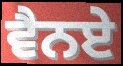
ਵੈਨਏ